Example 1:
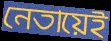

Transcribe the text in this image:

নেতায়েই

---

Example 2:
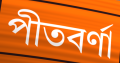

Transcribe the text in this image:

পীতবৰ্ণা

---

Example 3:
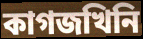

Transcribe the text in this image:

কাগজখিনি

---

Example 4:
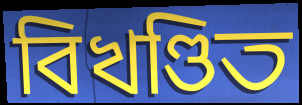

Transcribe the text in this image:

বিখণ্ডিত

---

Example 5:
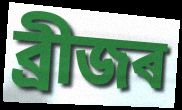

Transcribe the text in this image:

ব্ৰীজৰ